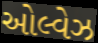
ઓલ્વેઝ